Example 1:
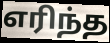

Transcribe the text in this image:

எரிந்த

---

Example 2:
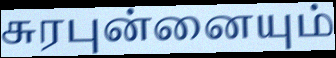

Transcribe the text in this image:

சுரபுன்னையும்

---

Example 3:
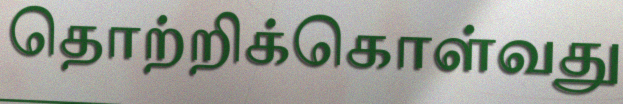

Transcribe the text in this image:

தொற்றிக்கொள்வது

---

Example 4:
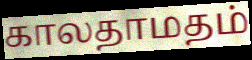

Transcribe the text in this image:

காலதாமதம்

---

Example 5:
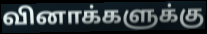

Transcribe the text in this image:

வினாக்களுக்கு